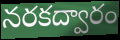
నరకద్వారం